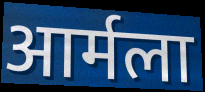
आर्मला